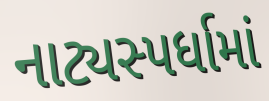
નાટ્યસ્પર્ધામાં